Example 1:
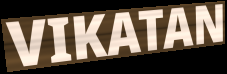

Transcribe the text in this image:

VIKATAN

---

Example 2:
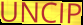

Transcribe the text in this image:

UNCIP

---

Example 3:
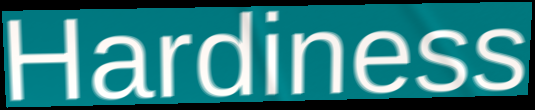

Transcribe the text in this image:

Hardiness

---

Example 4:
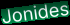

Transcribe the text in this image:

Jonides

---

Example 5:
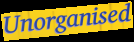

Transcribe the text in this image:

Unorganised